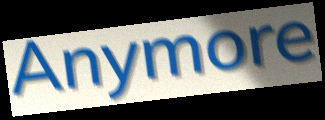
Anymore